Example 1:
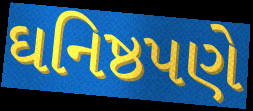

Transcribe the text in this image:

ઘનિષ્ઠપણે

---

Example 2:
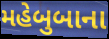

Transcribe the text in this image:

મહેબુબાના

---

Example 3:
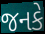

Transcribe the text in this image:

જનકે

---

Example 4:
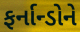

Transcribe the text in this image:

ફર્નાન્ડોને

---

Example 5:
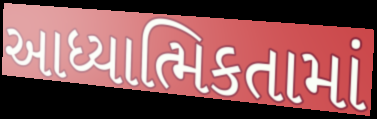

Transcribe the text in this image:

આધ્યાત્મિકતામાં